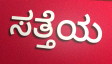
ಸತ್ತೆಯ